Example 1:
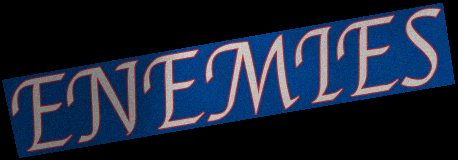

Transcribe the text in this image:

ENEMIES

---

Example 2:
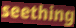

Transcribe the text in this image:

seething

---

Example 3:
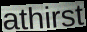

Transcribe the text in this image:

athirst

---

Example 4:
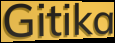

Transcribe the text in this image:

Gitika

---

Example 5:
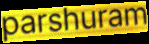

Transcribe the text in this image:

parshuram